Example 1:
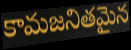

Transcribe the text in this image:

కామజనితమైన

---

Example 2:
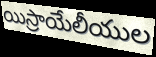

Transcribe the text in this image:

యిస్రాయేలీయుల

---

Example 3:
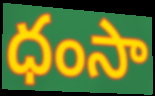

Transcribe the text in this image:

ధంసా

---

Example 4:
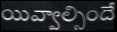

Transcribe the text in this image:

యివ్వాల్సిందే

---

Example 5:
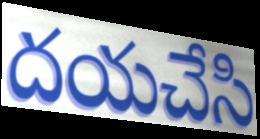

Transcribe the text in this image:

దయచేసి